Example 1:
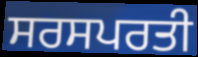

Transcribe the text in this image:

ਸਰਸਪਰਤੀ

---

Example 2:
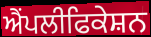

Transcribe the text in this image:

ਐਂਪਲੀਫਿਕੇਸ਼ਨ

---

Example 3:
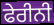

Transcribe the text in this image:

ਫੇਰੀਨੀ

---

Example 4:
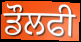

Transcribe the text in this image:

ਡੌਲਫੀ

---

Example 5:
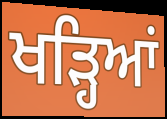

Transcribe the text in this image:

ਖੜ੍ਹਿਆਂ